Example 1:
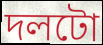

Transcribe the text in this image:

দলটো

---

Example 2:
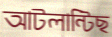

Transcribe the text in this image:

আটলান্টিছ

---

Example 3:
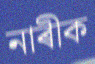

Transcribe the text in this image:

নাৰীক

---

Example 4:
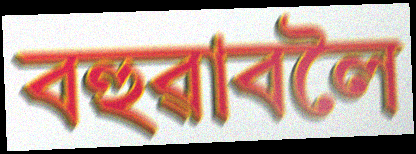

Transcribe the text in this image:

বহুৱাবলৈ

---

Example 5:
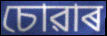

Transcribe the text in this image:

চোৱাৰ